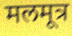
मलमूत्र